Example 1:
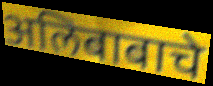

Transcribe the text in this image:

अलिबाबाचे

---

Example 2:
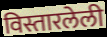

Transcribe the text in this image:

विस्तारलेली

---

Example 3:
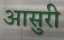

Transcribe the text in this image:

आसुरी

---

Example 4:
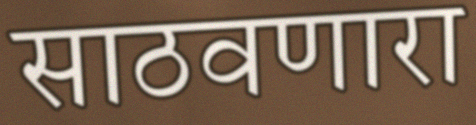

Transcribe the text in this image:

साठवणारा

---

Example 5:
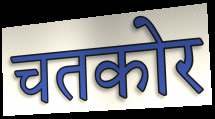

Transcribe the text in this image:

चतकोर